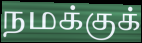
நமக்குக்